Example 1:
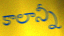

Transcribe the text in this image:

కాలాన్నీ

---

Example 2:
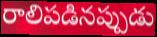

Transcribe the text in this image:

రాలిపడినప్పుడు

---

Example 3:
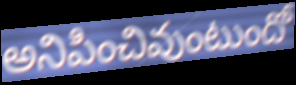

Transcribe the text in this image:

అనిపించివుంటుందో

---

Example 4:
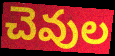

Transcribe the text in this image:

చెవుల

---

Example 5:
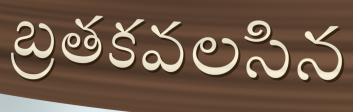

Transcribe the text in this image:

బ్రతకవలసిన